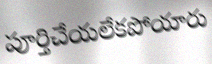
పూర్తిచేయలేకపోయారు